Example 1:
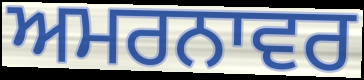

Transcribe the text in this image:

ਅਮਰਨਾਵਰ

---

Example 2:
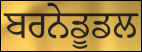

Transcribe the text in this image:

ਬਰਨੇਡੂਡਲ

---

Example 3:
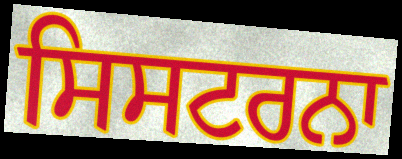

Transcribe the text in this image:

ਸਿਸਟਰਨਾ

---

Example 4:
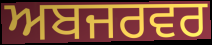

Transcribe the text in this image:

ਅਬਜਰਵਰ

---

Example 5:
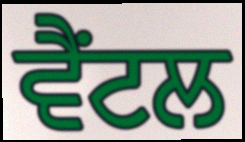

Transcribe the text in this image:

ਵੈਂਟਲ